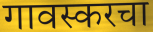
गावस्करचा